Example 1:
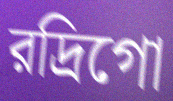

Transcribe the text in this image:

রদ্রিগো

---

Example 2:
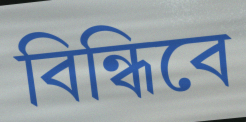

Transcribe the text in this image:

বিন্ধিবে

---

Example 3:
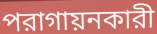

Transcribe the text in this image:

পরাগায়নকারী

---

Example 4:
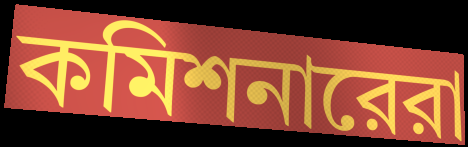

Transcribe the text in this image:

কমিশনারেরা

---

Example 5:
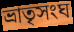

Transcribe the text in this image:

ভ্রাতৃসংঘ